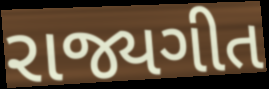
રાજ્યગીત